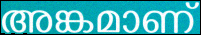
അങ്കമാണ്